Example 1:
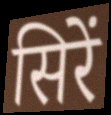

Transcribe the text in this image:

सिरें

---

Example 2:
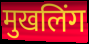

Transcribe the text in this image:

मुखलिंग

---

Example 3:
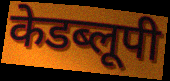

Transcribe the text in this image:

केडब्लूपी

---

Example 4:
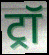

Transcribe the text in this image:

ट्रॉ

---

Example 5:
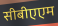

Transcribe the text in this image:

सीबीएएम